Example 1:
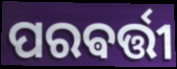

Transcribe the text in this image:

ପରଵର୍ତ୍ତୀ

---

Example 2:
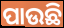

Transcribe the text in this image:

ପାଉଛି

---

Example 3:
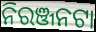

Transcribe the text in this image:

ନିରଞ୍ଜନଟା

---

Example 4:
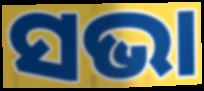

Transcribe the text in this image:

ସଭା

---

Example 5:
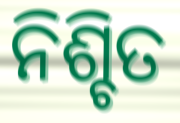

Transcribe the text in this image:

ନିଶ୍ଚିତ